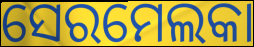
ସେରମେଲକା